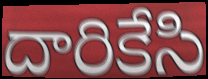
దారికేసి